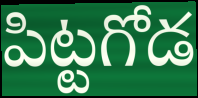
పిట్టగోడ